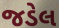
જડેલ